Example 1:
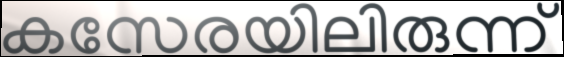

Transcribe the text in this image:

കസേരയിലിരുന്ന്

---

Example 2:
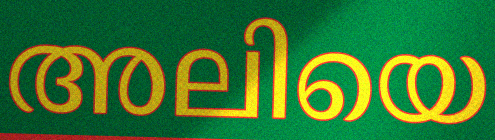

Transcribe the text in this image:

അലിയെ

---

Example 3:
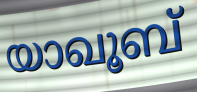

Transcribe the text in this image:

യാഖൂബ്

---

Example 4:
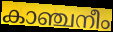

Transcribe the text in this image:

കാഞ്ചനീം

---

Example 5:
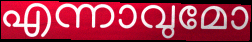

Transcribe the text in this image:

എന്നാവുമോ